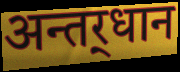
अन्तर्धान